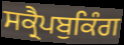
ਸਕ੍ਰੈਪਬੁਕਿੰਗ